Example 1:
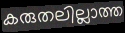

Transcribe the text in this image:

കരുതലില്ലാത്ത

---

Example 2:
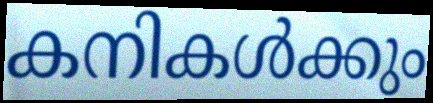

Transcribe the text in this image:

കനികൾക്കും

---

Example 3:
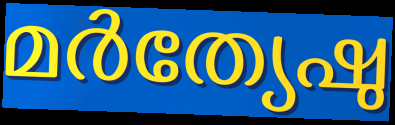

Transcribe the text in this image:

മർത്യേഷു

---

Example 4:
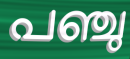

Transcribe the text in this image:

പഞ്ചു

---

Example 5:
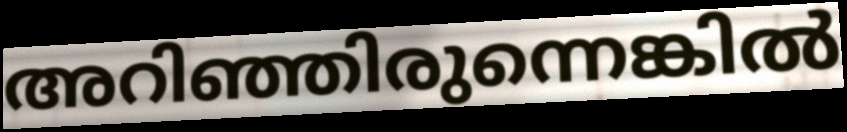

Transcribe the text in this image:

അറിഞ്ഞിരുന്നെങ്കിൽ